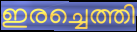
ഇരച്ചെത്തി